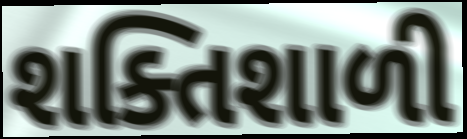
શક્તિશાળી